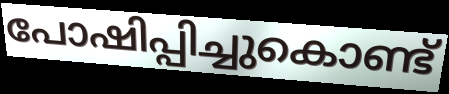
പോഷിപ്പിച്ചുകൊണ്ട്